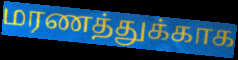
மரணத்துக்காக